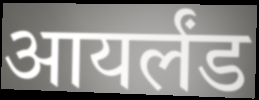
आयर्लंड